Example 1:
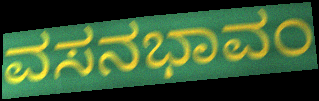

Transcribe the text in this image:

ವಸನಭಾವಂ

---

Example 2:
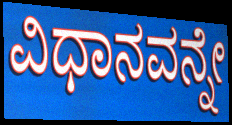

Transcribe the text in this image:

ವಿಧಾನವನ್ನೇ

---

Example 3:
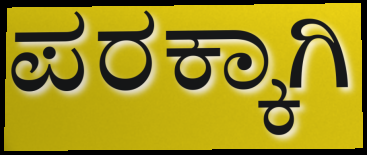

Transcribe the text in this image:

ಪರಕ್ಕಾಗಿ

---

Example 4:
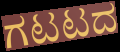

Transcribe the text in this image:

ಗಟಟದ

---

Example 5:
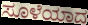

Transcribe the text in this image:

ಸೂಳೆಯಾದ